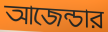
আজেন্ডার